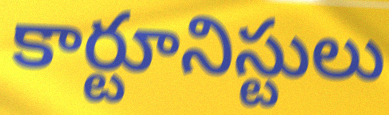
కార్టూనిస్టులు